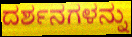
ದರ್ಶನಗಳನ್ನು